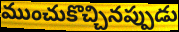
ముంచుకొచ్చినప్పుడు